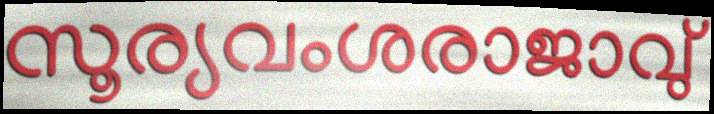
സൂര്യവംശരാജാവു്